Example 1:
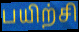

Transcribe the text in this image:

பயிற்சி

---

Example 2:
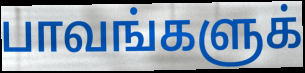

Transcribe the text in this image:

பாவங்களுக்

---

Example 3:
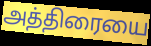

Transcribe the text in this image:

அத்திரையை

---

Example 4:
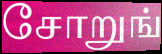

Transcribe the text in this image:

சோறுங்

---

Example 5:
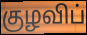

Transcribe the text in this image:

குழவிப்